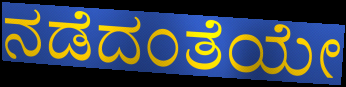
ನಡೆದಂತೆಯೇ